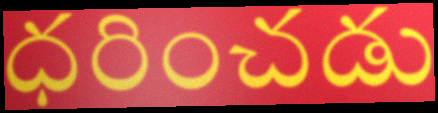
ధరించడు